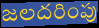
జలదరింపు